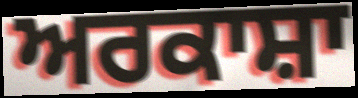
ਅਰਕਾਸ਼ਾ